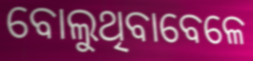
ବୋଲୁଥିବାବେଳେ